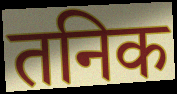
तनिक